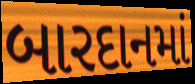
બારદાનમાં